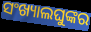
ସଂଖ୍ୟାଲଘୁଙ୍କର